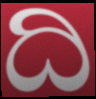
ದಿ